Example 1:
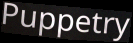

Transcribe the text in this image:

Puppetry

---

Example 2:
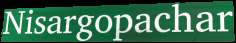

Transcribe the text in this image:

Nisargopachar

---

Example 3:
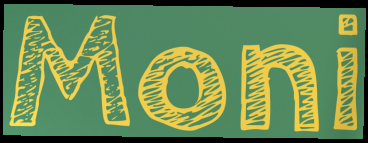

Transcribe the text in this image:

Moni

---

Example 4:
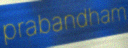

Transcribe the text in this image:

prabandham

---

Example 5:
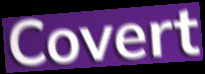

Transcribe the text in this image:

Covert